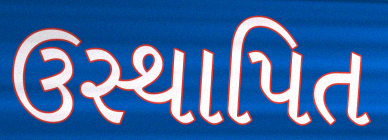
ઉસ્થાપિત